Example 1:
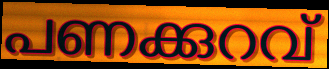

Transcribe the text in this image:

പണക്കുറവ്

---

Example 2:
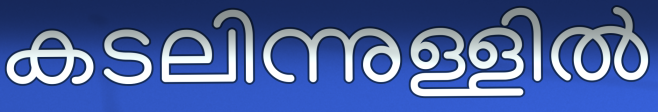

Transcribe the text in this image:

കടലിന്നുള്ളിൽ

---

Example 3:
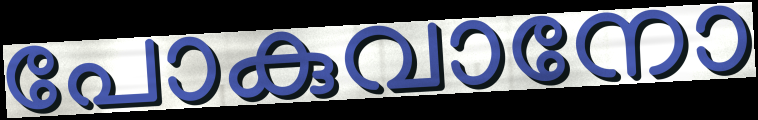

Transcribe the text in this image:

പോകുവാനോ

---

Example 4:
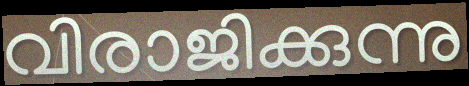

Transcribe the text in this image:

വിരാജിക്കുന്നു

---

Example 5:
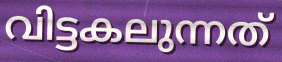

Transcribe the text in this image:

വിട്ടകലുന്നത്